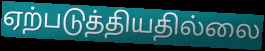
ஏற்படுத்தியதில்லை